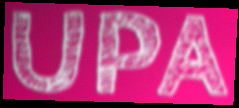
UPA